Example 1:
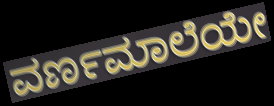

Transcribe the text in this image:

ವರ್ಣಮಾಲೆಯೇ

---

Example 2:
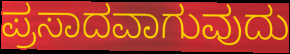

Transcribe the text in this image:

ಪ್ರಸಾದವಾಗುವುದು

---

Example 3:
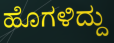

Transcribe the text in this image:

ಹೊಗಳಿದ್ದು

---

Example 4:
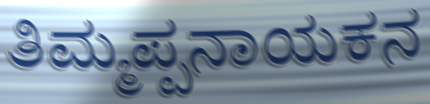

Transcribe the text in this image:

ತಿಮ್ಮಪ್ಪನಾಯಕನ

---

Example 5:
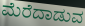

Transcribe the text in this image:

ಮೆರೆದಾಡುವ